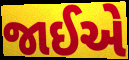
જાઈએ